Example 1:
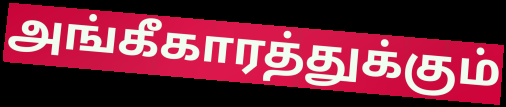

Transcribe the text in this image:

அங்கீகாரத்துக்கும்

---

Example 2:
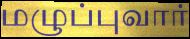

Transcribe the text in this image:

மழுப்புவார்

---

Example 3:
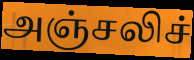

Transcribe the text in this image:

அஞ்சலிச்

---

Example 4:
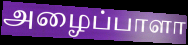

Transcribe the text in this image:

அழைப்பாளா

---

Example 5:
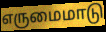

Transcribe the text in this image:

எருமைமாடு